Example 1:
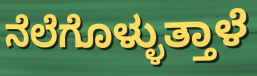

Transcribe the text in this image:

ನೆಲೆಗೊಳ್ಳುತ್ತಾಳೆ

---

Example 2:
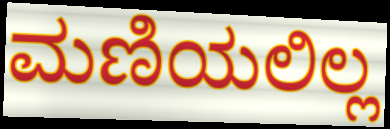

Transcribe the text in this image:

ಮಣಿಯಲಿಲ್ಲ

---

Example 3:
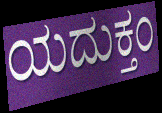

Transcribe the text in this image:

ಯದುಕ್ತಂ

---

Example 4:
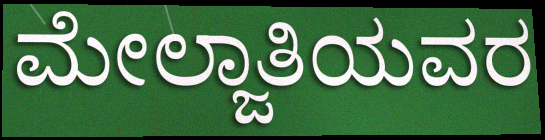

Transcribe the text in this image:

ಮೇಲ್ಜಾತಿಯವರ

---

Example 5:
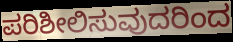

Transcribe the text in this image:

ಪರಿಶೀಲಿಸುವುದರಿಂದ